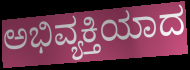
ಅಭಿವ್ಯಕ್ತಿಯಾದ